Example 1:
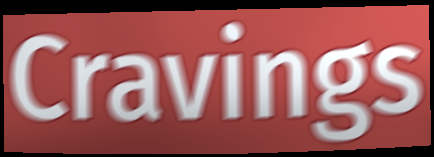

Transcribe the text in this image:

Cravings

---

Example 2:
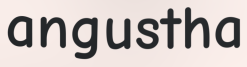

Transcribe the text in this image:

angustha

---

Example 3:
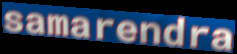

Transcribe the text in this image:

samarendra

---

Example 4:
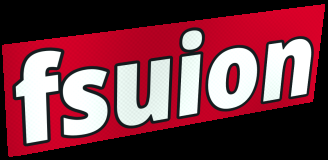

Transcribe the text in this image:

fsuion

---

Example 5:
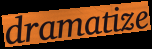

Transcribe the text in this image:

dramatize